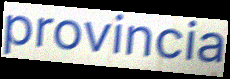
provincia